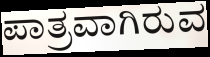
ಪಾತ್ರವಾಗಿರುವ